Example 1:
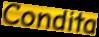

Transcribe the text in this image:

Condita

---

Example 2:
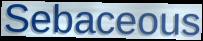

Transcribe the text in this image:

Sebaceous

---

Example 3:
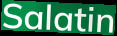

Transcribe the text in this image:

Salatin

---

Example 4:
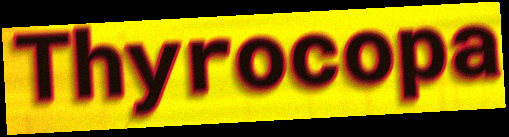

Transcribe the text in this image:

Thyrocopa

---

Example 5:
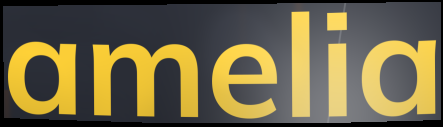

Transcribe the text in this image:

amelia